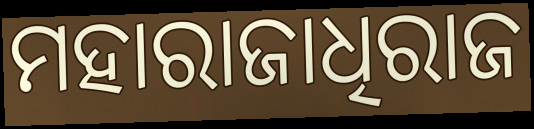
ମହାରାଜାଧିରାଜ